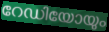
റേഡിയോയും